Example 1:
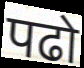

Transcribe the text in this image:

पढो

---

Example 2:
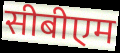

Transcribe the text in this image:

सीबीएम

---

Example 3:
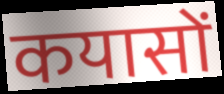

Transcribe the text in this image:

कयासों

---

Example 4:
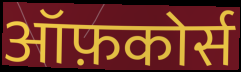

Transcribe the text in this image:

ऑफ़कोर्स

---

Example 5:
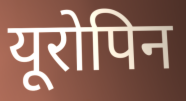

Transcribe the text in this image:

यूरोपिन